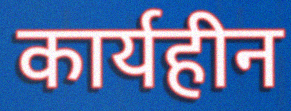
कार्यहीन